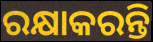
ରକ୍ଷାକରନ୍ତି